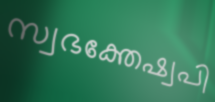
സ്വഭക്തേഷ്വപി